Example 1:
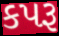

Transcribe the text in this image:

કપરૂ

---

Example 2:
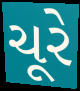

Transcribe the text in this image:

ચૂરે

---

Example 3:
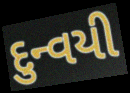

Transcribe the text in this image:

દુન્વયી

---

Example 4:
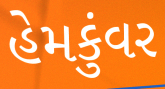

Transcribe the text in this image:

હેમકુંવર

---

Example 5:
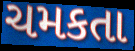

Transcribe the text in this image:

ચમકતા